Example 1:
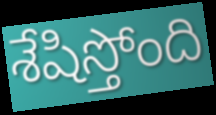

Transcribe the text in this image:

శేషిస్తోంది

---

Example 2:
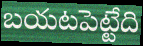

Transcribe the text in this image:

బయటపెట్టేది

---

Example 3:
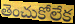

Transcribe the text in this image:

తెంచుకోలేక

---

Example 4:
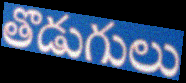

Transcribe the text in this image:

తొడుగులు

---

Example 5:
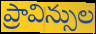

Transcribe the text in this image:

ప్రావిన్సుల